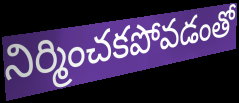
నిర్మించకపోవడంతో